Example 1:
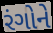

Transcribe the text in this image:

રંગોને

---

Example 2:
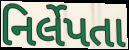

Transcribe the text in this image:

નિર્લેપતા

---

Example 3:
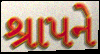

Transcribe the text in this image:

શ્રાપને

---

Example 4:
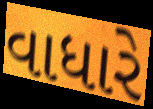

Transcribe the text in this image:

વાધારે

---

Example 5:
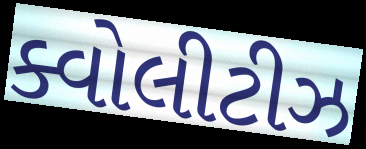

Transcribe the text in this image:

ક્વોલીટીઝ